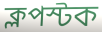
ক্লপস্টক